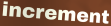
increment